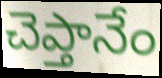
చెప్తానేం